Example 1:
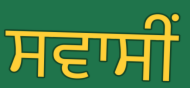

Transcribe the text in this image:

ਸਵਾਸੀਂ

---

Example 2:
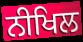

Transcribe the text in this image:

ਨੀਖਿਲ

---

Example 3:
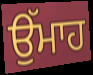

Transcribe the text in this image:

ਉੱਮਾਹ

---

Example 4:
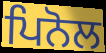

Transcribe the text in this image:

ਪਿਨੋਲ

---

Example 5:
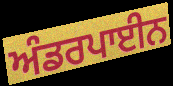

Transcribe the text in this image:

ਅੰਡਰਪਾਈਨ